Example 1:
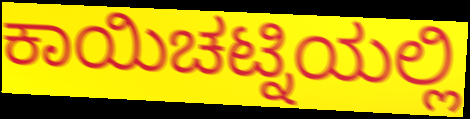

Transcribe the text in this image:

ಕಾಯಿಚಟ್ನಿಯಲ್ಲಿ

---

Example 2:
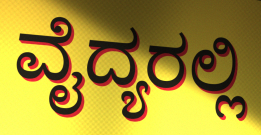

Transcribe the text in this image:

ವೈದ್ಯರಲ್ಲಿ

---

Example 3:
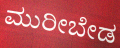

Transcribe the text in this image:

ಮುರೀಬೇಡ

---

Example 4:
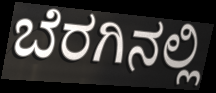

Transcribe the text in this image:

ಬೆರಗಿನಲ್ಲಿ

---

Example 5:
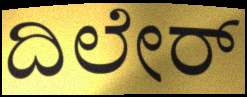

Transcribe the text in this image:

ದಿಲೇರ್